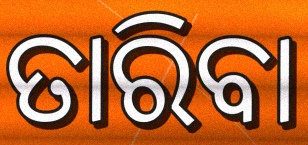
ତାରିବା